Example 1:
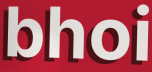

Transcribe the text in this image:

bhoi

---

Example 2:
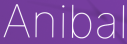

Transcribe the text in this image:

Anibal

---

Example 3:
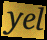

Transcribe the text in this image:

yel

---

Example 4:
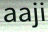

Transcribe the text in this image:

aaji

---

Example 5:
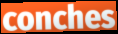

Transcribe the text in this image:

conches